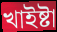
খাইষ্টা